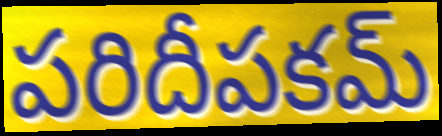
పరిదీపకమ్